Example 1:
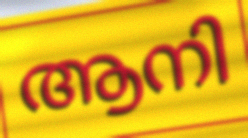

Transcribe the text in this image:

ആനി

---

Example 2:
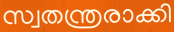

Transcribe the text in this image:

സ്വതന്ത്രരാക്കി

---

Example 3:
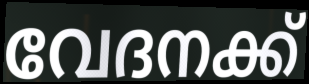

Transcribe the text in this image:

വേദനക്ക്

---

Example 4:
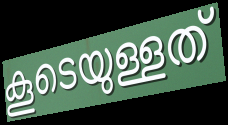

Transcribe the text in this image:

കൂടെയുള്ളത്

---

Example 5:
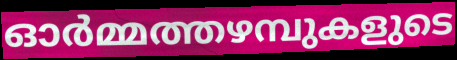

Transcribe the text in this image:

ഓർമ്മത്തഴമ്പുകളുടെ